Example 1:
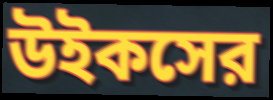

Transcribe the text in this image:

উইকসের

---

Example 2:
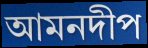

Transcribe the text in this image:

আমনদীপ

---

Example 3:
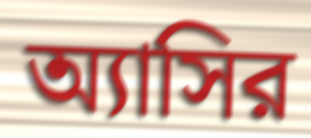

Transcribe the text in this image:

অ্যাসির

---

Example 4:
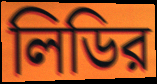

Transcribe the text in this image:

লিডির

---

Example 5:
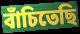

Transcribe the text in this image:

বাঁচিতেছি